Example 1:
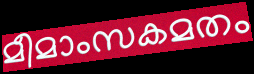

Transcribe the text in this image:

മീമാംസകമതം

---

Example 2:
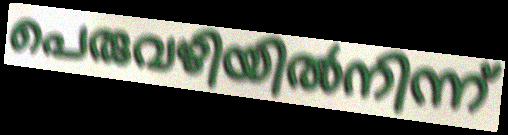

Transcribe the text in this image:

പെരുവഴിയിൽനിന്ന്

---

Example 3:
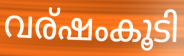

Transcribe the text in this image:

വര്ഷംകൂടി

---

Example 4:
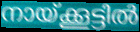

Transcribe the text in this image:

നായ്‌ക്കൂട്ടിൽ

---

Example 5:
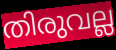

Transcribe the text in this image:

തിരുവല്ല